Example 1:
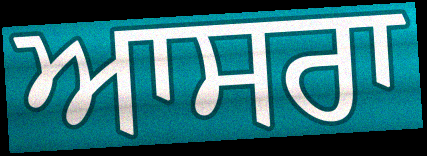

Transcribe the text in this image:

ਆਸਰਾ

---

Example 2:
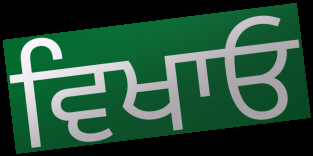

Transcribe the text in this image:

ਵਿਖਾਓ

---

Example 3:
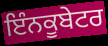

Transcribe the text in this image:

ਇੰਨਕੂਬੇਟਰ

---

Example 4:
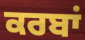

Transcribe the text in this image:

ਕਰਬਾਂ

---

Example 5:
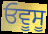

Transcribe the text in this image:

ਓਵੂਸੂ